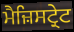
ਮੈਜ਼ਿਸਟ੍ਰੇਟ